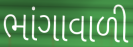
ભાંગાવાળી